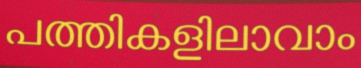
പത്തികളിലാവാം